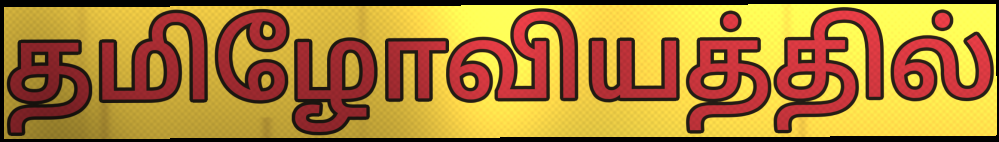
தமிழோவியத்தில்